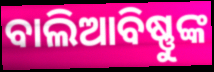
ବାଲିଆବିଷ୍ଣୁଙ୍କ